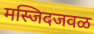
मस्जिदजवळ